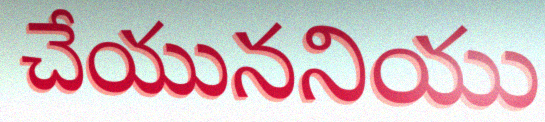
చేయుననియు